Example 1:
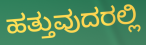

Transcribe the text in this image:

ಹತ್ತುವುದರಲ್ಲಿ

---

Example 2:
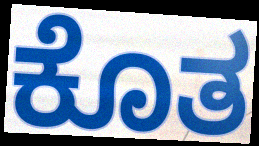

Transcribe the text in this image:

ಕೊತ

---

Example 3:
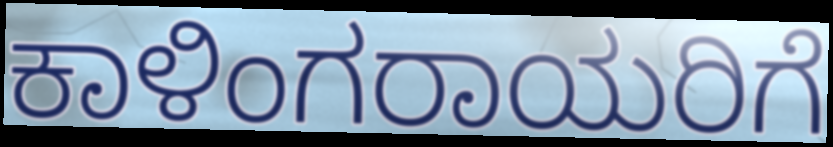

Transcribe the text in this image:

ಕಾಳಿಂಗರಾಯರಿಗೆ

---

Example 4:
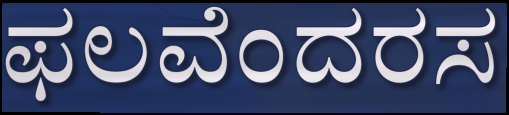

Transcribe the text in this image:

ಫಲವೆಂದರಸ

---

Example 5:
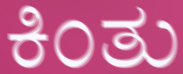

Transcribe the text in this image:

ಕಿಂತು